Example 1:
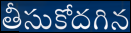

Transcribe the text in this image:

తీసుకోదగిన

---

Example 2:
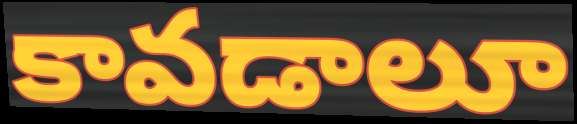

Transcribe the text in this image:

కావడాలూ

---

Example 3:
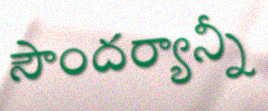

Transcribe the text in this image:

సౌందర్యాన్నీ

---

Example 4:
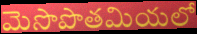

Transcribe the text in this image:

మెసొపొతమియలో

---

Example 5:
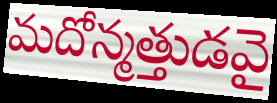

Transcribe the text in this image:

మదోన్మత్తుడవై